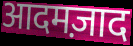
आदमज़ाद